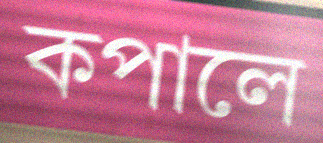
কপালে